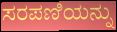
ಸರಪಣಿಯನ್ನು